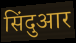
सिंदुआर